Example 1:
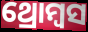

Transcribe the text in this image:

ଥ୍ରୋମ୍ବସ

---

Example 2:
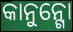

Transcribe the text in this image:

କାନୁନ୍ଗୋ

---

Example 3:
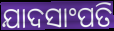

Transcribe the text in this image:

ଯାଦସାଂପତି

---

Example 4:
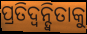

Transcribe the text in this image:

ପ୍ରତିଦ୍ୱନ୍ଦ୍ୱିତାକୁ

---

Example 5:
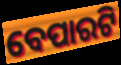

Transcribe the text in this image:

ବେପାରଟି